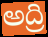
అద్రి